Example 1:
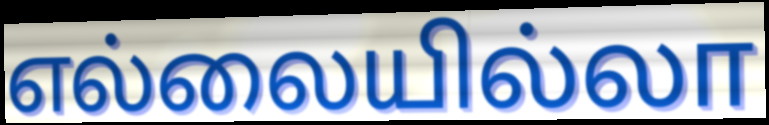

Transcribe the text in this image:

எல்லையில்லா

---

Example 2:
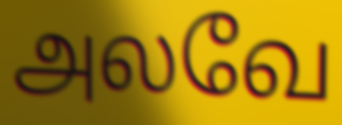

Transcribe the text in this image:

அலவே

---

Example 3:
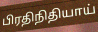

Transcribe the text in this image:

பிரதிநிதியாய்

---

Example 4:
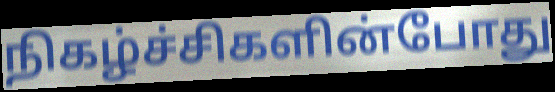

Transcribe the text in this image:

நிகழ்ச்சிகளின்போது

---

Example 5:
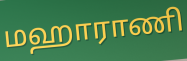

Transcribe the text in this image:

மஹாராணி